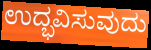
ಉದ್ಭವಿಸುವುದು